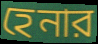
হেনার